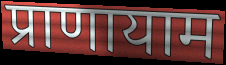
प्राणायाम